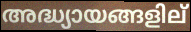
അദ്ധ്യായങ്ങളില്